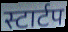
स्टार्टप